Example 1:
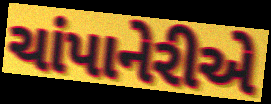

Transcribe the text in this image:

ચાંપાનેરીએ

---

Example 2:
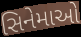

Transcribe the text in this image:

સિનેમાઓ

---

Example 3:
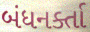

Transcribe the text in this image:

બંધનર્ક્તા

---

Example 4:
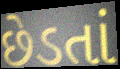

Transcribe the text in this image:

છેડતાં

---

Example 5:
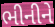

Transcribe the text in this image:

ભીનીને